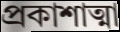
প্রকাশাত্মা